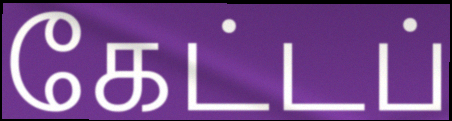
கேட்டப்